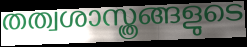
തത്വശാസ്ത്രങ്ങളുടെ